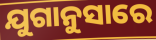
ଯୁଗାନୁସାରେ